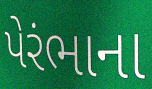
પેરંભાના